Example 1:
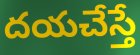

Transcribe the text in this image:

దయచేస్తే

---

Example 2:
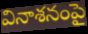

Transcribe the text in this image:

వినాశనంపై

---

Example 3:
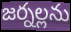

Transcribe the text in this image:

జర్నల్లను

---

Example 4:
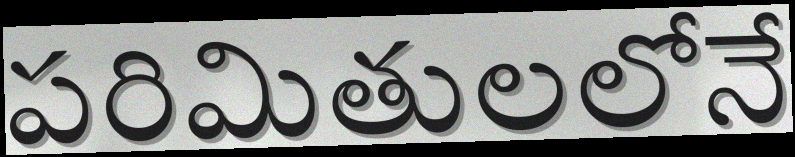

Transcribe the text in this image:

పరిమితులలోనే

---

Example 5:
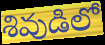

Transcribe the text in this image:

శివుడిలో